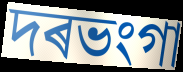
দৰভংগা